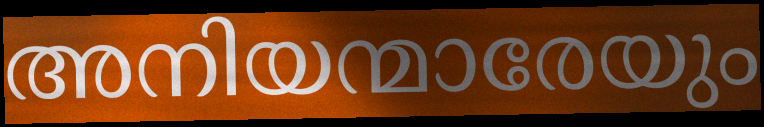
അനിയന്മാരേയും